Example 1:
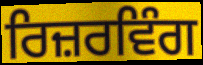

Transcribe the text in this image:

ਰਿਜ਼ਰਵਿੰਗ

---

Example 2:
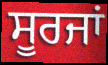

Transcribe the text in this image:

ਸੂਰਜਾਂ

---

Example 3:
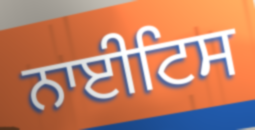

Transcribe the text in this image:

ਨਾਈਟਿਸ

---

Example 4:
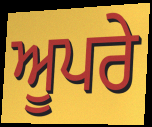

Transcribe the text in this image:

ਅੂਪਰੇ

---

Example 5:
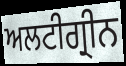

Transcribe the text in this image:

ਅਲਟੀਗ੍ਰੀਨ